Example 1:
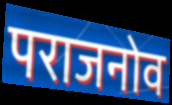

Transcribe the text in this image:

पराजनोव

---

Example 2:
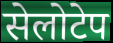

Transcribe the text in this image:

सेलोटेप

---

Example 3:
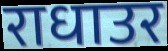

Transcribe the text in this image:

राधाउर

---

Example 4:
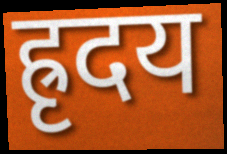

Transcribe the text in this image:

ह्रृदय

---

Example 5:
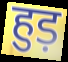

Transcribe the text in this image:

हुड़